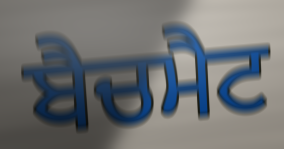
ਬੈਚਮੈਟ